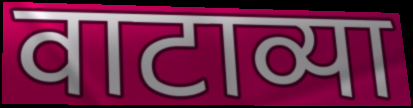
वाटाव्या